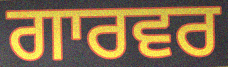
ਗਾਰਵਰ